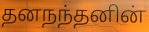
தனநந்தனின்